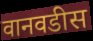
वानवडीस